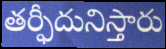
తర్ఫీదునిస్తారు